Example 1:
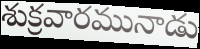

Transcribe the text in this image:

శుక్రవారమునాడు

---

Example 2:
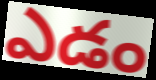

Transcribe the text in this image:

ఎడం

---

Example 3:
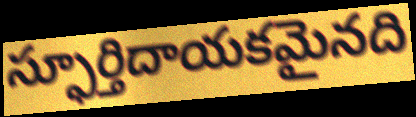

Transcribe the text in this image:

స్ఫూర్తిదాయకమైనది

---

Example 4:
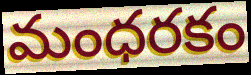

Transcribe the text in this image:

మంధరకం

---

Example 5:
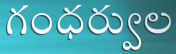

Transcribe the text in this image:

గంధర్వుల